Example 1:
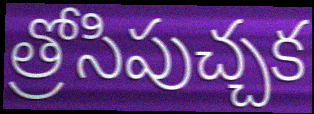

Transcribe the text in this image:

త్రోసిపుచ్చక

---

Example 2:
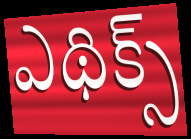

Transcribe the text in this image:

ఎథిక్స్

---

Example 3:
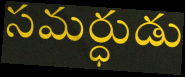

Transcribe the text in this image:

సమర్ధుడు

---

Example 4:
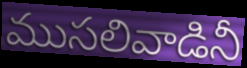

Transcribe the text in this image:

ముసలివాడినీ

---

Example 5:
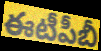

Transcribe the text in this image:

ఈటీపీబీ